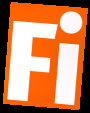
Fi